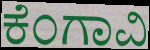
ಕೆಂಗಾವಿ